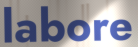
labore